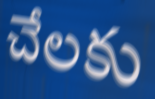
చేలకు